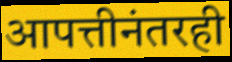
आपत्तीनंतरही